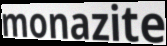
monazite